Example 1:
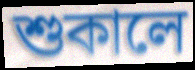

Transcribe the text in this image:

শুকালে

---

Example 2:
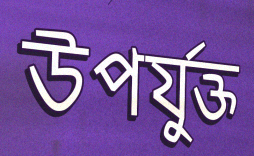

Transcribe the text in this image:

উপৰ্যুক্ত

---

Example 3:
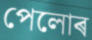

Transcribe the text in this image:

পেলোৰ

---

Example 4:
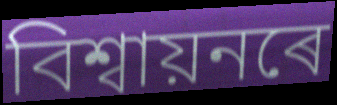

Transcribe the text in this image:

বিশ্বায়নৰে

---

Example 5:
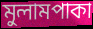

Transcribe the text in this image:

মুলামপাকা